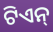
ଟିଏନ୍